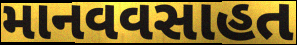
માનવવસાહત